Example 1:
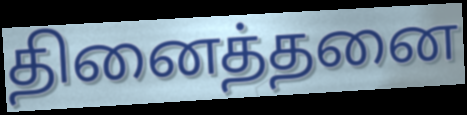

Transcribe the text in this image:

தினைத்தனை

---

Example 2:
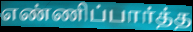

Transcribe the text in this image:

எண்ணிப்பார்த்த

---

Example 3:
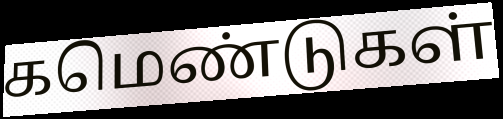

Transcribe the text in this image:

கமெண்டுகள்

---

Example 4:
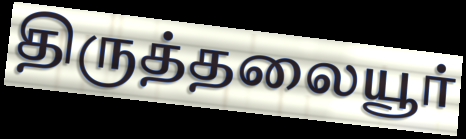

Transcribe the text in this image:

திருத்தலையூர்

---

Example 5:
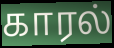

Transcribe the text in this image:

காரல்